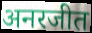
अनरजीत